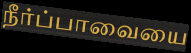
நீர்ப்பாவையை